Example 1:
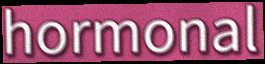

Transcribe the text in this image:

hormonal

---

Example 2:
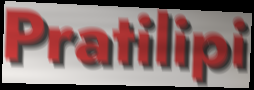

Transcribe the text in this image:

Pratilipi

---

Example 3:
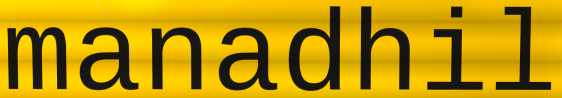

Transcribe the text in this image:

manadhil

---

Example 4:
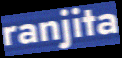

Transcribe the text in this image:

ranjita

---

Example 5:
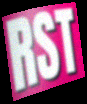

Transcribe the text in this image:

RST